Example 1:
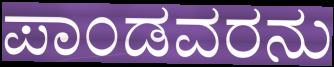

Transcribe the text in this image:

ಪಾಂಡವರನು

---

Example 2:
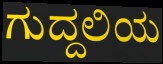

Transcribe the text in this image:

ಗುದ್ದಲಿಯ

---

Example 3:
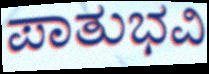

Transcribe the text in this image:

ಪಾತುಭವಿ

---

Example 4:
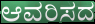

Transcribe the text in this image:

ಆವರಿಸದ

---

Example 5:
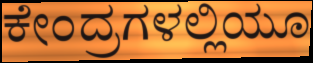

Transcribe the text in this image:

ಕೇಂದ್ರಗಳಲ್ಲಿಯೂ